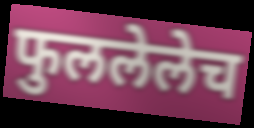
फुललेलेच